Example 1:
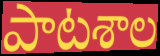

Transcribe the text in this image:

పాటశాల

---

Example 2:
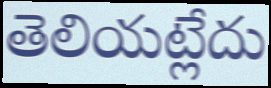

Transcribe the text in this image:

తెలియట్లేదు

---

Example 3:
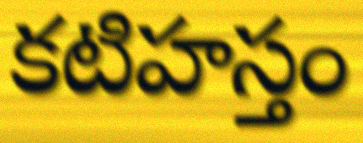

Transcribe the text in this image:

కటిహస్తం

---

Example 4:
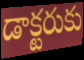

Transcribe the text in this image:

డాక్టరుకు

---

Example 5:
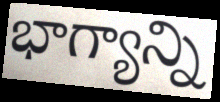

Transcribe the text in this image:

భాగ్యాన్ని